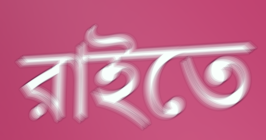
রাইতে